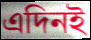
এদিনই